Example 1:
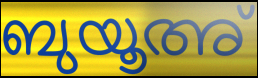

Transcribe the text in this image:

ബുയൂഅ്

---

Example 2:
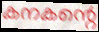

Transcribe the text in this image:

കനകന്റെ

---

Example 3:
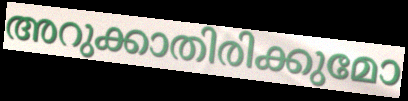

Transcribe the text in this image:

അറുക്കാതിരിക്കുമോ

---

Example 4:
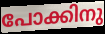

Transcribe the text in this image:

പോക്കിനു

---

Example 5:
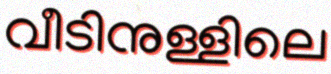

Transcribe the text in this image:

വീടിനുള്ളിലെ